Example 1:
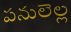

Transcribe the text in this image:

పనులెల్ల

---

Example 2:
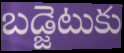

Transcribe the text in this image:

బడ్జెటుకు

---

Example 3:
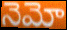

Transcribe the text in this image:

నెమో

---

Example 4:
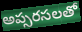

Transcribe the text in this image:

అప్సరసలతో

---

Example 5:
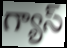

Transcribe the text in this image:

గ్యాస్